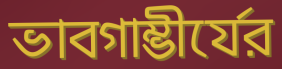
ভাবগাম্ভীর্যের